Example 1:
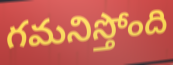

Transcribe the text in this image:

గమనిస్తోంది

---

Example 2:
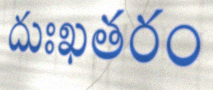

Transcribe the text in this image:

దుఃఖతరం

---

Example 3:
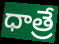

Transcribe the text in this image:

ధాత్రే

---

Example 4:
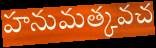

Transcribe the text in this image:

హనుమత్కవచ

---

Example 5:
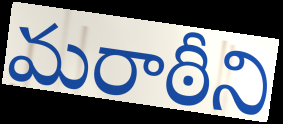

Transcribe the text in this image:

మరాఠీని